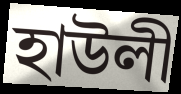
হাউলী